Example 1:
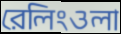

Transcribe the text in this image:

রেলিংওলা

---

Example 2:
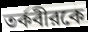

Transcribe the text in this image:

তর্কবীরকে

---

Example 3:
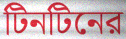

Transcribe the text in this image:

টিনটিনের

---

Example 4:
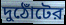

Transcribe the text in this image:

দুঠোঁটের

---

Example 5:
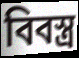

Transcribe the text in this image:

বিবস্ত্র